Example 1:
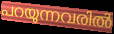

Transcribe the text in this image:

പറയുന്നവരിൽ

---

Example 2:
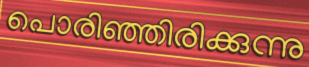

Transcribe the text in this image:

പൊരിഞ്ഞിരിക്കുന്നു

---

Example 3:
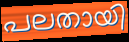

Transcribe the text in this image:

പലതായി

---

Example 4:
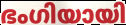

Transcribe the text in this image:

ഭംഗിയായി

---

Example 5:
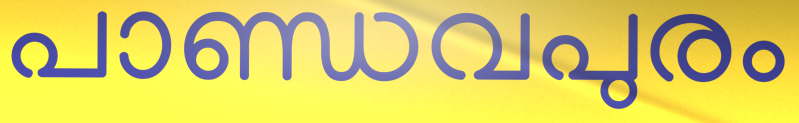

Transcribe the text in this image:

പാണ്ഡവപുരം